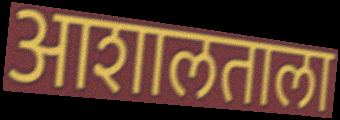
आशालताला